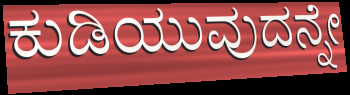
ಕುಡಿಯುವುದನ್ನೇ